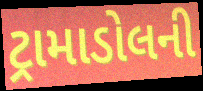
ટ્રામાડોલની